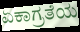
ಏಕಾಗ್ರತೆಯ